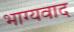
भाग्यवाद